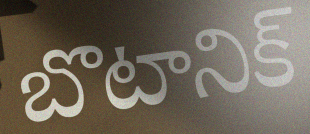
బొటానిక్